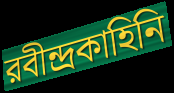
রবীন্দ্রকাহিনি